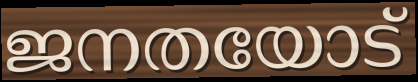
ജനതയോട്